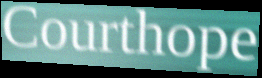
Courthope